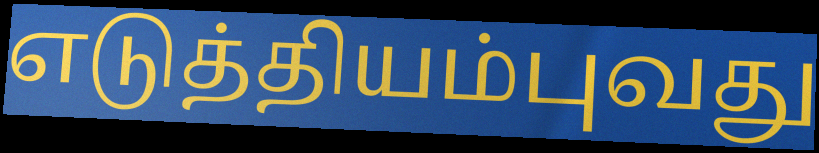
எடுத்தியம்புவது